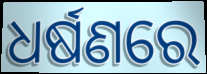
ଧର୍ଷଣରେ